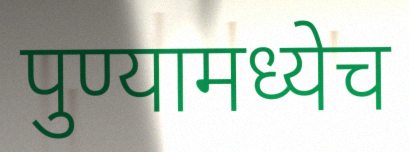
पुण्यामध्येच